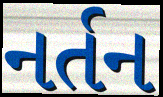
નર્તન